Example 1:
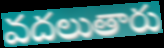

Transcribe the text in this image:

వదలుతారు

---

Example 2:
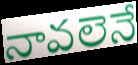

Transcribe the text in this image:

నావలెనే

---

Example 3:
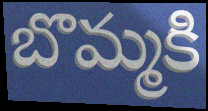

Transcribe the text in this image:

బొమ్మకి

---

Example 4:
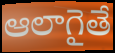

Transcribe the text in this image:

ఆలాగైతే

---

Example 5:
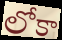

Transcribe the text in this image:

లోకా